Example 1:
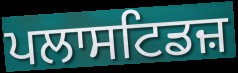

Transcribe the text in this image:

ਪਲਾਸਟਿਡਜ਼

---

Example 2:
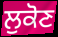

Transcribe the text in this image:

ਲੁਕੋਣ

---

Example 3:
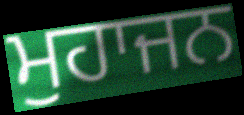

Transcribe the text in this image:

ਮੁਹਾਜਨ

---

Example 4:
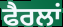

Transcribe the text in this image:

ਫੈਰਲਾਂ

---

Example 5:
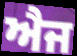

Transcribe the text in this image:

ਐਜ